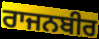
ਰਾਜਨਬੀਰ